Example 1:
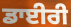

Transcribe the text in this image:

ਡਾਈਰੀ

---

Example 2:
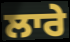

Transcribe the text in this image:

ਲਾਰੇ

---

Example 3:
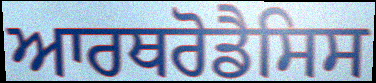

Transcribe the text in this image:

ਆਰਥਰੋਡੈਸਿਸ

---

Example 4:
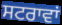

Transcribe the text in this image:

ਸਟਰਾਵਾਂ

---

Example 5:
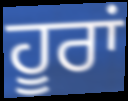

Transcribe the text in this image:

ਹੂਰਾਂ